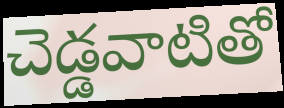
చెడ్డవాటితో